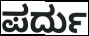
ಪರ್ದು